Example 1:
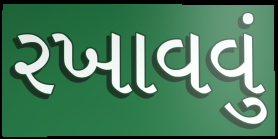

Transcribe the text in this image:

રખાવવું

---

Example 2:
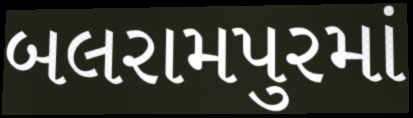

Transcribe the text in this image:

બલરામપુરમાં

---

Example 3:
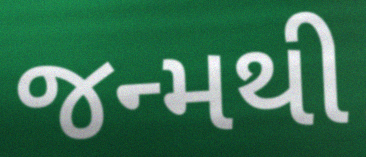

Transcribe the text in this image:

જન્મથી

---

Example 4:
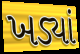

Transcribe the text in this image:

ખડ્યાં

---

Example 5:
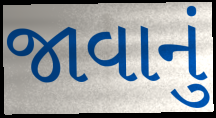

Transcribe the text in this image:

જાવાનું